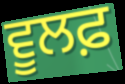
ਵੂਲਫ਼